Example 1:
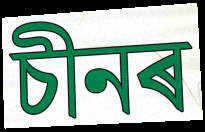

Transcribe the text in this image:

চীনৰ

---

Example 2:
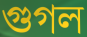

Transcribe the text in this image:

গুগল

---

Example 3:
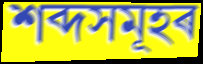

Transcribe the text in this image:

শব্দসমূহৰ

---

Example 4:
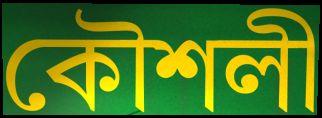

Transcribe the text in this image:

কৌশলী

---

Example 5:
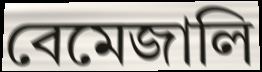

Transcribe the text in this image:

বেমেজালি